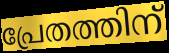
പ്രേതത്തിന്